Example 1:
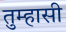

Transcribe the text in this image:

तुम्हासी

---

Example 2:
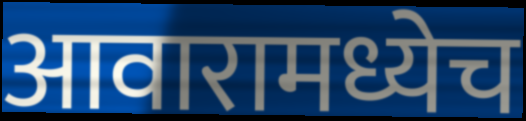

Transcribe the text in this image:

आवारामध्येच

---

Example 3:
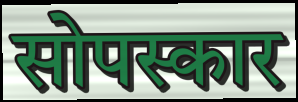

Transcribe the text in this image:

सोपस्कार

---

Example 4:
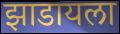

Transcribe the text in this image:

झाडायला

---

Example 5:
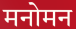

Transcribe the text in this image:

मनोमन